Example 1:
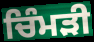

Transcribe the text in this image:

ਚਿੰਮੜੀ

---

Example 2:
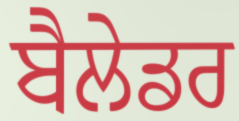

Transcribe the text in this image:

ਬੈਲੇਡਰ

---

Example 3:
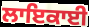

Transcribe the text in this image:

ਲਾਇਕਾਈ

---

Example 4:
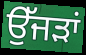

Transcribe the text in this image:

ਉੱਜੜਾਂ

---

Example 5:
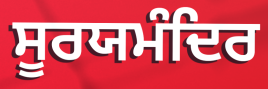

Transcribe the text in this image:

ਸੂਰਯਮੰਦਿਰ